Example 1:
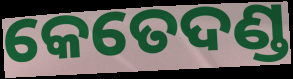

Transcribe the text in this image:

କେତେଦଣ୍ଡ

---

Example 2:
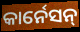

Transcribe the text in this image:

କାର୍ନେସନ୍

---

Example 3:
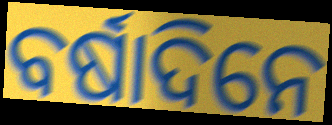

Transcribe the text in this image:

ବର୍ଷାଦିନେ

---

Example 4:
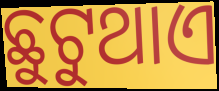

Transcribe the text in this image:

ଛୁଟୁଥାଏ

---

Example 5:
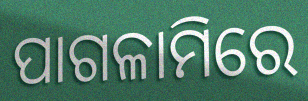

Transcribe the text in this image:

ପାଗଳାମିରେ